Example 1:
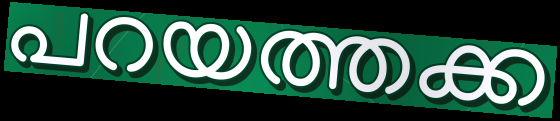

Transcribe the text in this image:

പറയത്തക്ക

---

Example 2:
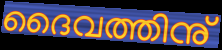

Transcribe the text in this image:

ദൈവത്തിനു്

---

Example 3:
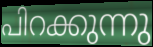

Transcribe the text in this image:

പിറക്കുന്നു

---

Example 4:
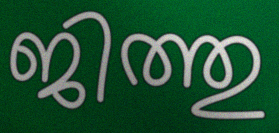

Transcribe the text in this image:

ജിത്തു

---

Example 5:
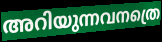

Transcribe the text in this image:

അറിയുന്നവനത്രെ